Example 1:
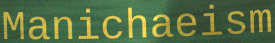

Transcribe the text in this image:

Manichaeism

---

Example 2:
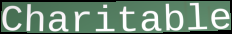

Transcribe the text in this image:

Charitable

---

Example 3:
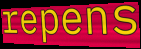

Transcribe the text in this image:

repens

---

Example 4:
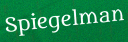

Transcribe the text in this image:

Spiegelman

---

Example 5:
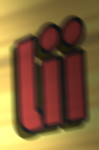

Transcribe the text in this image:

lii